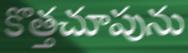
కొత్తచూపును